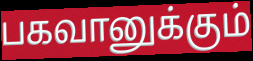
பகவானுக்கும்